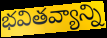
భవితవ్యాన్ని